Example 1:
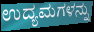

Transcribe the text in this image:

ಉದ್ಯಮಗಳನ್ನು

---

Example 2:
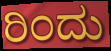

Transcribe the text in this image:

ರಿಂದು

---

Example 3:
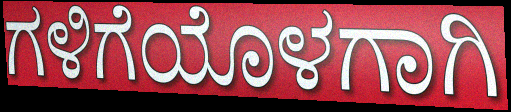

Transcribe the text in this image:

ಗಳಿಗೆಯೊಳಗಾಗಿ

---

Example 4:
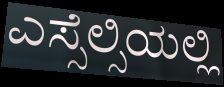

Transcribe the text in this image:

ಎಸ್ಸೆಲ್ಸಿಯಲ್ಲಿ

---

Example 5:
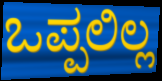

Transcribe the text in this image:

ಒಪ್ಪಲಿಲ್ಲ